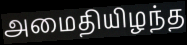
அமைதியிழந்த